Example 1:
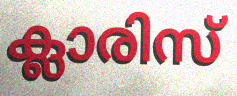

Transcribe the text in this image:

ക്ലാരിസ്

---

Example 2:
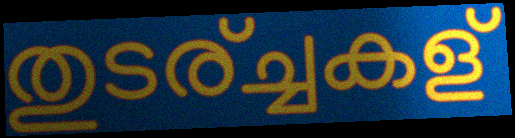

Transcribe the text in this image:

തുടര്ച്ചകള്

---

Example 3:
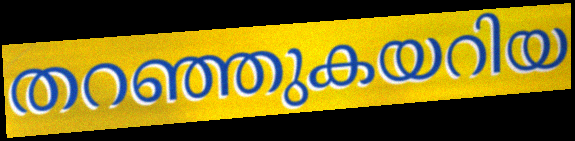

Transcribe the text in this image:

തറഞ്ഞുകയറിയ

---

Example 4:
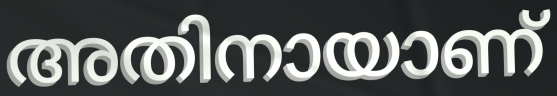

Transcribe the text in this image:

അതിനായാണ്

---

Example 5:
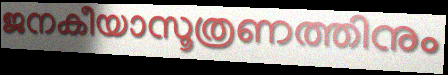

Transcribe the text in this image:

ജനകീയാസൂത്രണത്തിനും